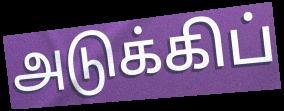
அடுக்கிப்